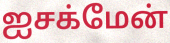
ஐசக்மேன்